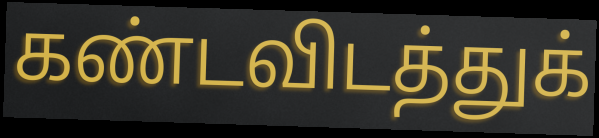
கண்டவிடத்துக்